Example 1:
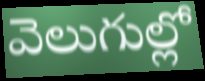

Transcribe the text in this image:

వెలుగుల్లో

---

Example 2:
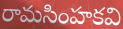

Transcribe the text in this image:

రామసింహకవి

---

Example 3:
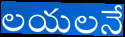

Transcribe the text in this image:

లయలనే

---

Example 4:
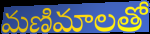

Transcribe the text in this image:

మణిమాలతో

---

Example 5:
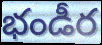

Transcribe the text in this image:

భండీర